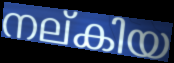
നല്‌കിയ